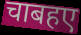
चाबहए